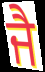
ਜੈ